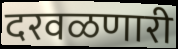
दरवळणारी